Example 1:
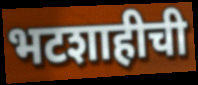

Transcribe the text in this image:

भटशाहीची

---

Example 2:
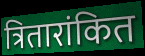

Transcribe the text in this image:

त्रितारांकित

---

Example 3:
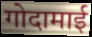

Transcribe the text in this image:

गोदामाई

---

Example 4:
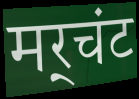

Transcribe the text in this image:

मर्चंट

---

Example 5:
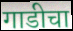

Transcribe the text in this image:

गाडीचा